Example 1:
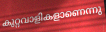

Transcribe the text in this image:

കുറ്റവാളികളാണെന്നു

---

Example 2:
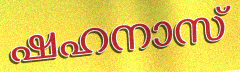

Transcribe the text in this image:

ഷഹനാസ്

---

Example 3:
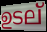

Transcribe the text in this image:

ഉടല്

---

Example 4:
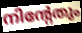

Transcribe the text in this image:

നിന്റേതും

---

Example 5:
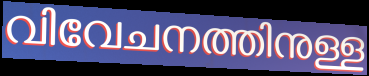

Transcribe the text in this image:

വിവേചനത്തിനുള്ള